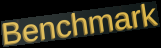
Benchmark